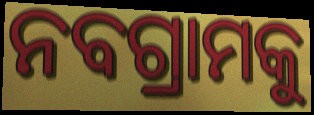
ନବଗ୍ରାମକୁ